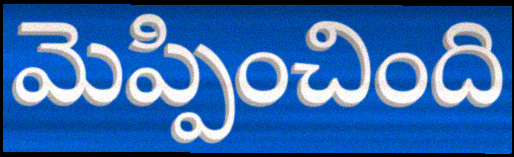
మెప్పించింది